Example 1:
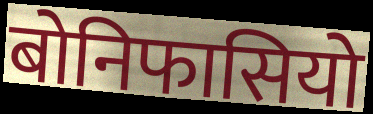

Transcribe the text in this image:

बोनिफासियो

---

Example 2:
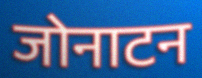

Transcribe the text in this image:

जोनाटन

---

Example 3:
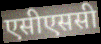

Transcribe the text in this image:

एसीएससी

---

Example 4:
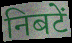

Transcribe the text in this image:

निबटें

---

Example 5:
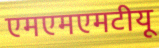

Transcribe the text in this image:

एमएमएमटीयू